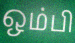
ஒம்பி